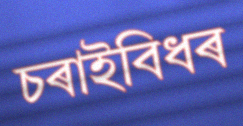
চৰাইবিধৰ